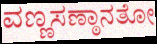
ವಣ್ಣಸಣ್ಠಾನತೋ